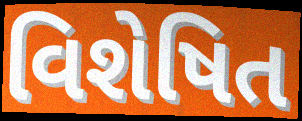
વિશેષિત